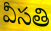
వీసతి